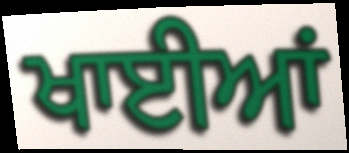
ਖਾਈਆਂ